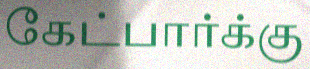
கேட்பார்க்கு